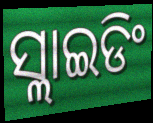
ସ୍ଲାଇଡିଂ